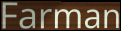
Farman